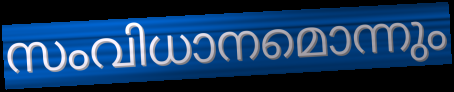
സംവിധാനമൊന്നും